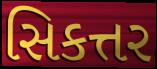
સિકત્તર